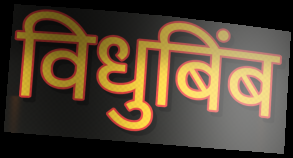
विधुबिंब